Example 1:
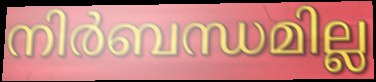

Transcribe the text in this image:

നിർബന്ധമില്ല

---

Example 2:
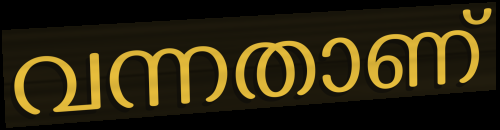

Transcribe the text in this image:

വന്നതാണ്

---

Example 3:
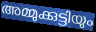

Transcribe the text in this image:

അമ്മുക്കുട്ടിയും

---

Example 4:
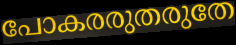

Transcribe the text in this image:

പോകരരുതരുതേ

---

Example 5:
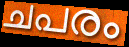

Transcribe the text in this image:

ചപരം